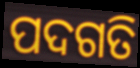
ପଦଗତି